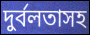
দুর্বলতাসহ